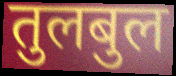
तुलबुल